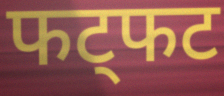
फट्फट